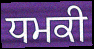
ਧਮਕੀ